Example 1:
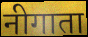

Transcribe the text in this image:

नीगाता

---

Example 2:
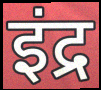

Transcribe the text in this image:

इंद्र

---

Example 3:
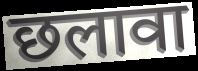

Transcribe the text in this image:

छलावा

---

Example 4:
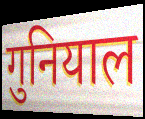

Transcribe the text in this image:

गुनियाल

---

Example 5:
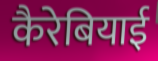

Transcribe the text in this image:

कैरेबियाई